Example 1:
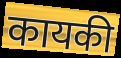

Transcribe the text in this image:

कायकी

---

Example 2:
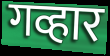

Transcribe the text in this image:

गव्हार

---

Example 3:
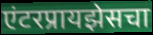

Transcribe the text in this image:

एंटरप्रायझेसचा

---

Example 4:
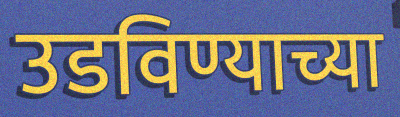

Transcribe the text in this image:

उडविण्याच्या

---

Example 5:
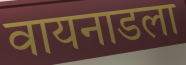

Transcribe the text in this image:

वायनाडला